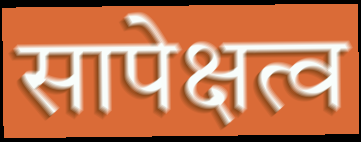
सापेक्षत्व